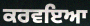
ਕਰਵਇਆ